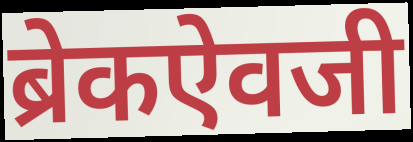
ब्रेकऐवजी